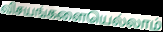
விசயங்களையெல்லாம்